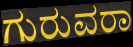
ಗುರುವರಾ